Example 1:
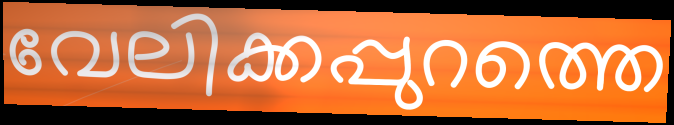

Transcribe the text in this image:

വേലിക്കപ്പുറത്തെ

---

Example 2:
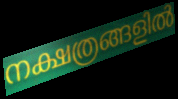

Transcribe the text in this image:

നക്ഷത്രങ്ങളിൽ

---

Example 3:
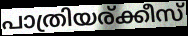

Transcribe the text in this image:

പാത്രിയര്ക്കീസ്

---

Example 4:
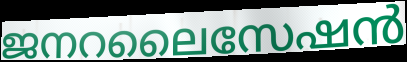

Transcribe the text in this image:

ജനറലൈസേഷൻ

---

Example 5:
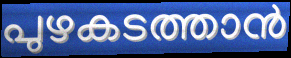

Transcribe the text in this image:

പുഴകടത്താൻ